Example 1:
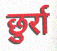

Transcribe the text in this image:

छुर्रा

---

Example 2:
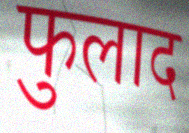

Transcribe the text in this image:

फुलाद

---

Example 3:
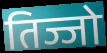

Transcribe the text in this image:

तिज्जो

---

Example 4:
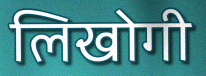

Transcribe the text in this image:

लिखोगी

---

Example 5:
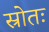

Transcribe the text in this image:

स्रोतः